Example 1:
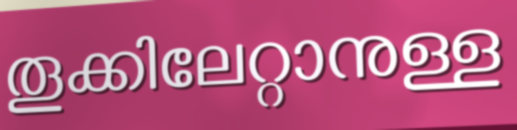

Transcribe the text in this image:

തൂക്കിലേറ്റാനുള്ള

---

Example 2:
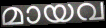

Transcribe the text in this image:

മായവ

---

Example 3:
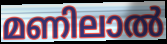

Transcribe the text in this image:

മണിലാൽ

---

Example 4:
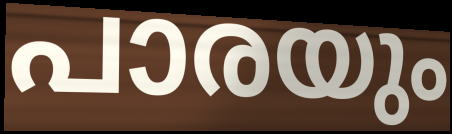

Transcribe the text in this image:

പാരയും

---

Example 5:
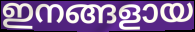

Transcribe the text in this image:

ഇനങ്ങളായ